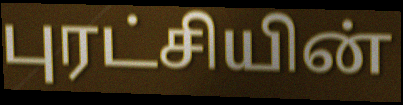
புரட்சியின்